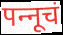
पन्नूचं